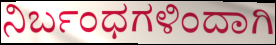
ನಿರ್ಬಂಧಗಳಿಂದಾಗಿ